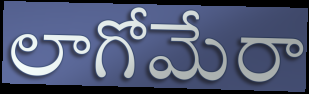
లాగోమేరా